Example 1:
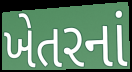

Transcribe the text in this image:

ખેતરનાં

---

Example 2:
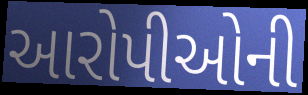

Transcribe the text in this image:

આરોપીઓની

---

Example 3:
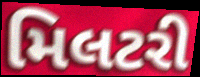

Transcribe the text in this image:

મિલટરી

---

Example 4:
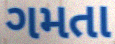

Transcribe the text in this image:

ગમતા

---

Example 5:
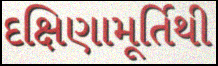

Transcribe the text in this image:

દક્ષિણામૂર્તિથી